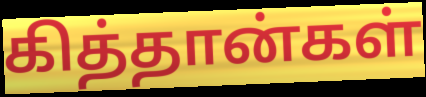
கித்தான்கள்